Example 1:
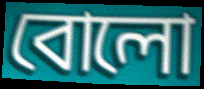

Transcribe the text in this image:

বোলো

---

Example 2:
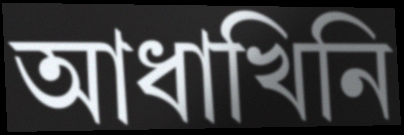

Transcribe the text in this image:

আধাখিনি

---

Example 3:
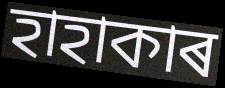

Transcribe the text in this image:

হাহাকাৰ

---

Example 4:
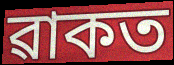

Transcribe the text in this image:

ৱাকত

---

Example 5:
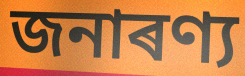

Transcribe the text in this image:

জনাৰণ্য